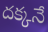
దక్కనే